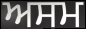
ਅਸਮ